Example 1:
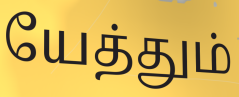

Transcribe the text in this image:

யேத்தும்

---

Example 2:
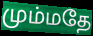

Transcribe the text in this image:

மும்மதே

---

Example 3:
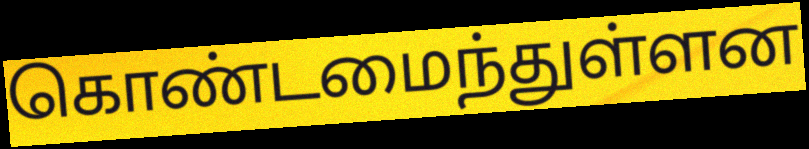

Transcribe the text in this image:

கொண்டமைந்துள்ளன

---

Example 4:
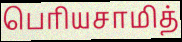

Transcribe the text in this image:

பெரியசாமித்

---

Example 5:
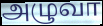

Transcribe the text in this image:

அழுவா